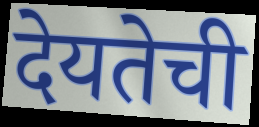
देयतेची